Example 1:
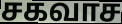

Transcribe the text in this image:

சகவாச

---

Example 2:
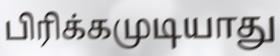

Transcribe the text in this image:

பிரிக்கமுடியாது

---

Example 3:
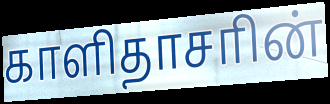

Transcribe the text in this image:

காளிதாசரின்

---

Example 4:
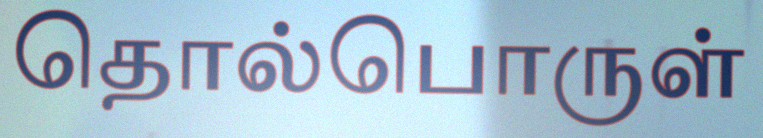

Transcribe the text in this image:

தொல்பொருள்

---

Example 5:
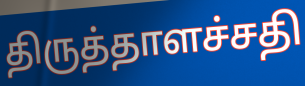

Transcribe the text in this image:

திருத்தாளச்சதி